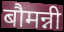
बौमन्नी